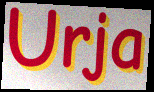
Urja